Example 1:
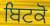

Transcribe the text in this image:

ਬਿਟਕੋ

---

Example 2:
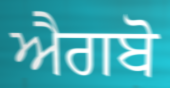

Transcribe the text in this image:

ਐਗਬੋ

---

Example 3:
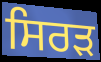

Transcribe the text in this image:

ਸਿਰੜ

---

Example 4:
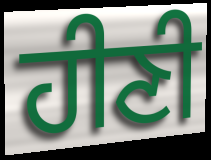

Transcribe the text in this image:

ਹੀਣੀ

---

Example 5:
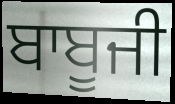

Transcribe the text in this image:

ਬਾਬੂਜੀ